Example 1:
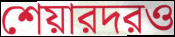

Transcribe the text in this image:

শেয়ারদরও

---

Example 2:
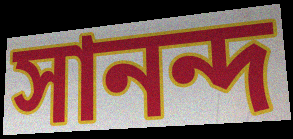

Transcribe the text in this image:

সানন্দ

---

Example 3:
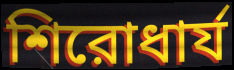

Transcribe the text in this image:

শিরোধার্য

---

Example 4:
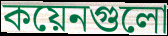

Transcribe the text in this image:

কয়েনগুলো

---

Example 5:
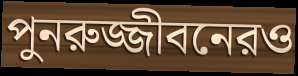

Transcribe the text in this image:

পুনরুজ্জীবনেরও